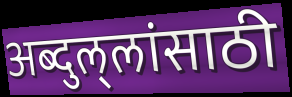
अब्दुल्लांसाठी